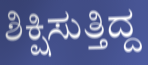
ಶಿಕ್ಷಿಸುತ್ತಿದ್ದ